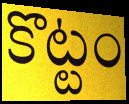
కొట్టం